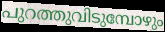
പുറത്തുവിടുമ്പോഴും